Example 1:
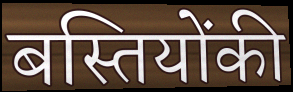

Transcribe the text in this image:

बस्तियोंकी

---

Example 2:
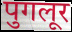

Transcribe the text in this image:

पुगलूर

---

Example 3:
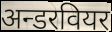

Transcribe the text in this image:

अन्डरवियर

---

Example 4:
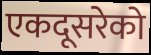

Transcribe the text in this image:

एकदूसरेको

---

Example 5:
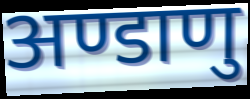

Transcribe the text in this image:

अण्डाणु